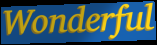
Wonderful